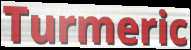
Turmeric